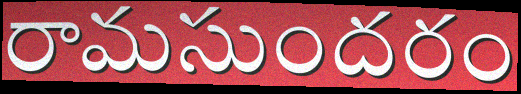
రామసుందరం